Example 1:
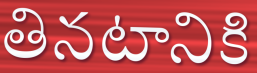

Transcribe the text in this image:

తినటానికి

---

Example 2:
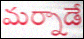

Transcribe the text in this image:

మర్నాడే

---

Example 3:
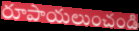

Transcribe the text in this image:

రూపాయలుంచండి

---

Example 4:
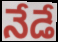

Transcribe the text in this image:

నేడే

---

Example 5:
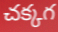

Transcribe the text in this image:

చక్కగ